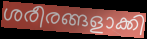
ശരീരങ്ങളാക്കി